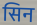
सिन